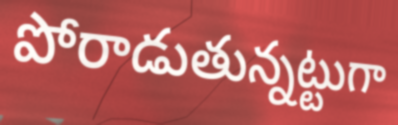
పోరాడుతున్నట్టుగా